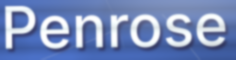
Penrose